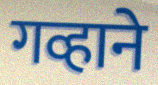
गव्हाने